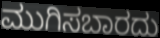
ಮುಗಿಸಬಾರದು